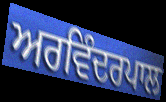
ਅਰਵਿੰਦਰਪਾਲ